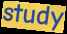
study